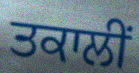
ਤਕਾਲੀਂ